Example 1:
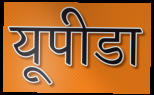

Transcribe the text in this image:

यूपीडा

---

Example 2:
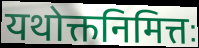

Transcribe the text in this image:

यथोक्तनिमित्तः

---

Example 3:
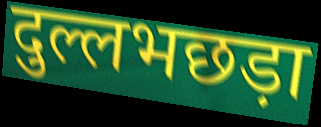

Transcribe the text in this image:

दुल्लभछड़ा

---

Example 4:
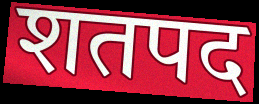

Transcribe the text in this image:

शतपद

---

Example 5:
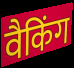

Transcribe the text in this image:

वैकिंग